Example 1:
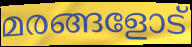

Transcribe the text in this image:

മരങ്ങളോട്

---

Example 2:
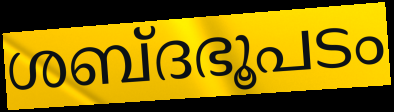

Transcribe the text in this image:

ശബ്ദഭൂപടം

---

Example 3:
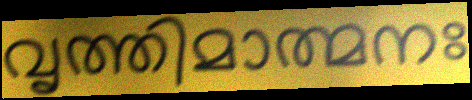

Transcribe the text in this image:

വൃത്തിമാത്മനഃ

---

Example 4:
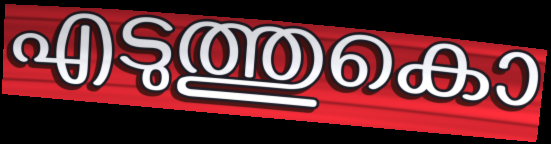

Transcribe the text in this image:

എടുത്തുകൊ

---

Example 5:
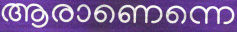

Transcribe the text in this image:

ആരാണെന്നെ